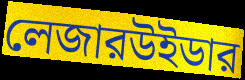
লেজারউইডার